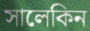
সালেকিন